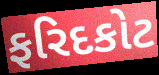
ફરિદકોટ